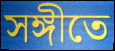
সঙ্গীতে